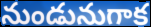
నుండునుగాక